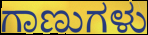
ಗಾಣುಗಳು